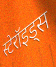
स्टेरॉइड्स